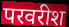
परवरीश